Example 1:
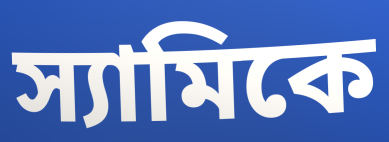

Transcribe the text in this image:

স্যামিকে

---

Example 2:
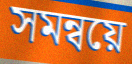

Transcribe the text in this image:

সমন্বয়ে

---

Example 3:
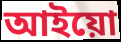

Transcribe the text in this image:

আইয়ো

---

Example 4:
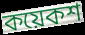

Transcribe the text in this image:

কয়েকশ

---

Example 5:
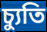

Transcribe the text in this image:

চ্যুতি